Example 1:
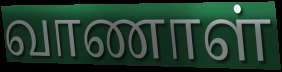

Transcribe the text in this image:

வாணாள்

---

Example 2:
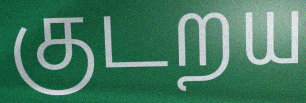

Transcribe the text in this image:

குடறய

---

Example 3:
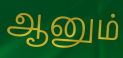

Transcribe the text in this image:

ஆனும்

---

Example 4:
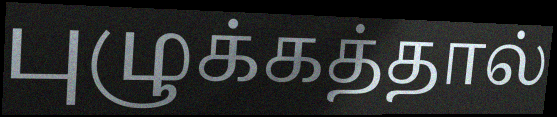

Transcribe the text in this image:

புழுக்கத்தால்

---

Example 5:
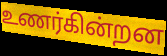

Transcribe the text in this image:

உணர்கின்றன